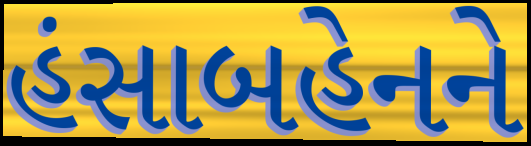
હંસાબહેનને